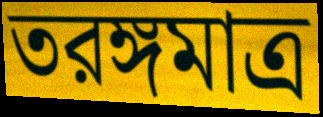
তরঙ্গমাত্র